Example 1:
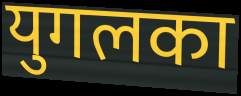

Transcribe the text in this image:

युगलका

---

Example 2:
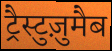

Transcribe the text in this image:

ट्रैस्टुज़ुमैब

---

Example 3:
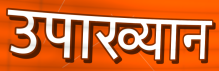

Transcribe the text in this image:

उपाख्यान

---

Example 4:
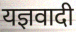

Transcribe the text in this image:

यज्ञवादी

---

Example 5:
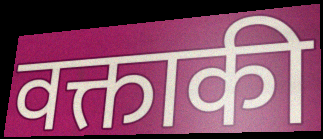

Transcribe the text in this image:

वक्ताकी